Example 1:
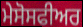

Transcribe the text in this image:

ਮੇਸੋਸਫੀਅਰ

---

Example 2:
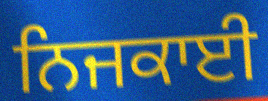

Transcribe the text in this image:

ਨਿਜਕਾਈ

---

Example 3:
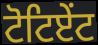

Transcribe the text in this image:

ਟੋਟਿਏਂਟ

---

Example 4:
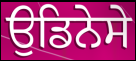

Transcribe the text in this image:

ਉਡਿਨੇਸੇ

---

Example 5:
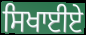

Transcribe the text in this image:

ਸਿਖਾਈਏ